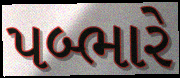
પબ્ભારે